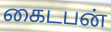
கைடபன்